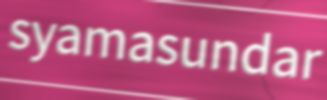
syamasundar